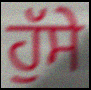
ਹੁੱਸੇ